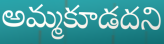
అమ్మకూడదని